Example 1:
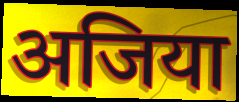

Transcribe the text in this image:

अजिया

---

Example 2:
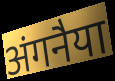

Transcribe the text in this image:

अंगनैया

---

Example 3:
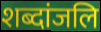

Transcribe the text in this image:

शब्दांजलि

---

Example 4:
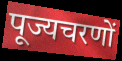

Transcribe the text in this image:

पूज्यचरणों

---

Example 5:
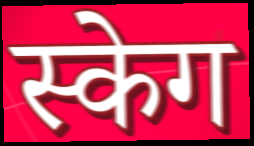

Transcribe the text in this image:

स्केग